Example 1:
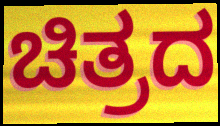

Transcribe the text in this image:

ಚಿತ್ರದ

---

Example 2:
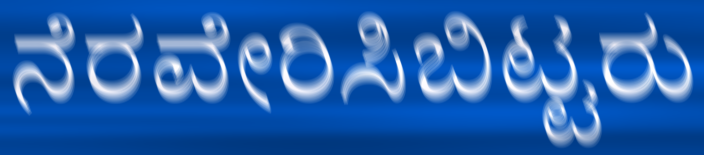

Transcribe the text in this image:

ನೆರವೇರಿಸಿಬಿಟ್ಟರು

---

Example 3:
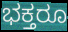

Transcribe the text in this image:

ಭಕ್ತರೂ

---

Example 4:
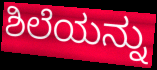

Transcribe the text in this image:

ಶಿಲೆಯನ್ನು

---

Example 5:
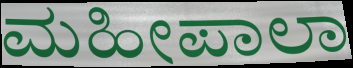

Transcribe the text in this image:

ಮಹೀಪಾಲಾ